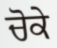
ਚੋਕੇ